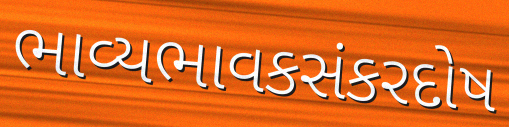
ભાવ્યભાવકસંકરદોષ